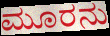
ಮೂರನು